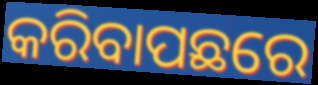
କରିବାପଛରେ